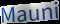
Mauni